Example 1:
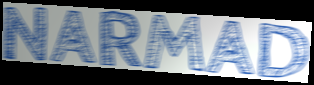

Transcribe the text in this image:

NARMAD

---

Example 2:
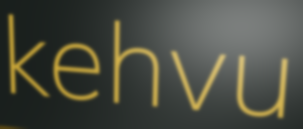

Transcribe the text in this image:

kehvu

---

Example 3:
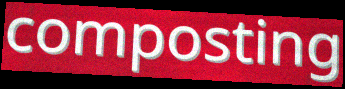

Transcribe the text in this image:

composting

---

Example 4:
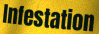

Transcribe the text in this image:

Infestation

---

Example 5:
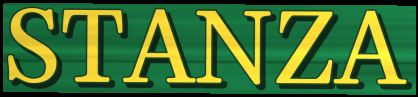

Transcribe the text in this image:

STANZA